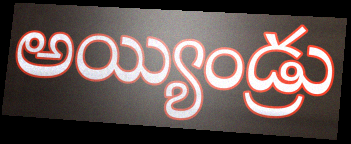
అయ్యిండ్రు